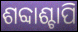
ଶବ୍ଦାଶ୍ଚାପି